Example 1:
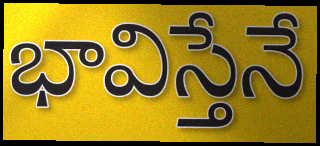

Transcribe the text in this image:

భావిస్తేనే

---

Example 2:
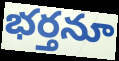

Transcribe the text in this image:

భర్తనూ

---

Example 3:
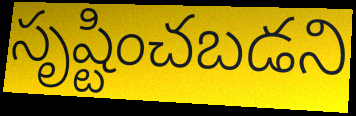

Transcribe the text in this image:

సృష్టించబడని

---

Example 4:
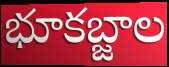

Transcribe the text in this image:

భూకబ్జాల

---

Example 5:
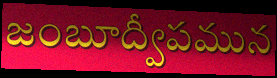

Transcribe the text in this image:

జంబూద్వీపమున